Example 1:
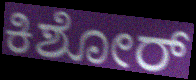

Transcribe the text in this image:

ಕಿಶೋರ್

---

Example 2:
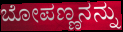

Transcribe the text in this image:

ಬೋಪಣ್ಣನನ್ನು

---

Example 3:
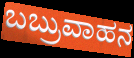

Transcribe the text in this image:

ಬಬ್ರುವಾಹನ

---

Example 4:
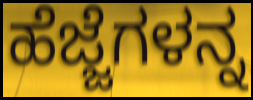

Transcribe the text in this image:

ಹೆಜ್ಜೆಗಳನ್ನ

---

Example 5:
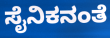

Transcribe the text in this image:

ಸೈನಿಕನಂತೆ